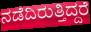
ನಡೆದಿರುತ್ತಿದ್ದರೆ